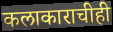
कलाकाराचीही